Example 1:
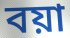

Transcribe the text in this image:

বয়া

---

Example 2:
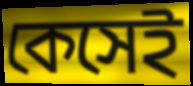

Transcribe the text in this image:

কেসেই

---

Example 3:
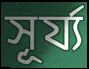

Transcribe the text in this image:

সূর্য্য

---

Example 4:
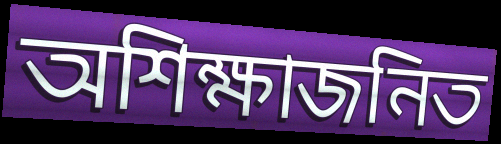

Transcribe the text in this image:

অশিক্ষাজনিত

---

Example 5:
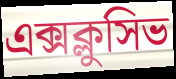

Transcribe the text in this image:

এক্সক্লুসিভ